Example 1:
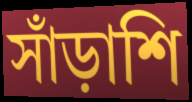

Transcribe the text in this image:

সাঁড়াশি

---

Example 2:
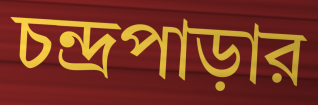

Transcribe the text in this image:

চন্দ্রপাড়ার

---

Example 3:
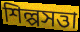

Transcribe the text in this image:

শিল্পসত্তা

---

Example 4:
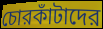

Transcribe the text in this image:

চোরকাঁটাদের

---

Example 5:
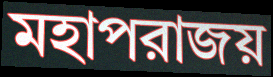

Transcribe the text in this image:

মহাপরাজয়